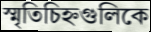
স্মৃতিচিহ্নগুলিকে